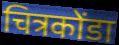
चित्रकोंडा